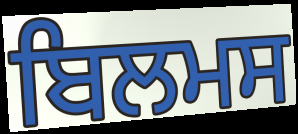
ਬਿਲਮਸ